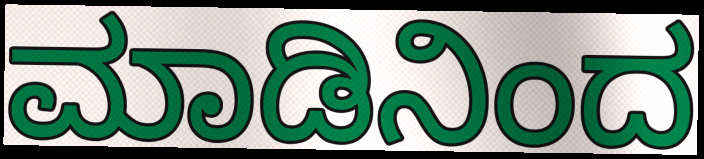
ಮಾಡಿನಿಂದ